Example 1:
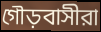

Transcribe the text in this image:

গৌড়বাসীরা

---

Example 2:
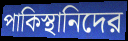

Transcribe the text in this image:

পাকিস্থানিদের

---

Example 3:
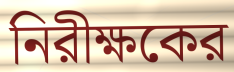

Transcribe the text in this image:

নিরীক্ষকের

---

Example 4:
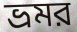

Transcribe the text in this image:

ভ্রমর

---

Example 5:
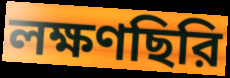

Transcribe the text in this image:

লক্ষণছিরি